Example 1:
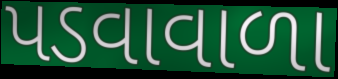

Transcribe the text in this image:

પડવાવાળા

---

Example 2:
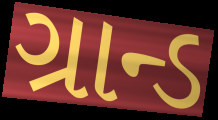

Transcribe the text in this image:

ગ્રાન્ડ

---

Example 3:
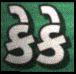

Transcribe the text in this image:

કેકે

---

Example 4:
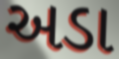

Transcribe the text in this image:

અડા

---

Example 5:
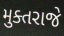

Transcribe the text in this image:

મુક્તરાજે